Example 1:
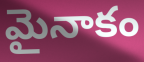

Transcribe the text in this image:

మైనాకం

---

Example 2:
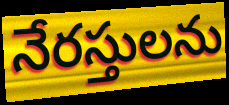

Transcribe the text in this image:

నేరస్తులను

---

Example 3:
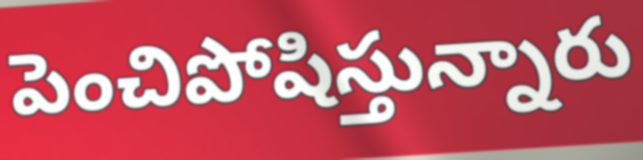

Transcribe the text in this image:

పెంచిపోషిస్తున్నారు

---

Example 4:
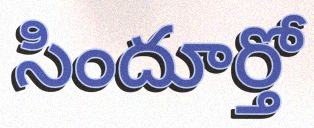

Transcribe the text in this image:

సిందూర్తో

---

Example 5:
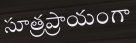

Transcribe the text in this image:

సూత్రప్రాయంగా